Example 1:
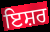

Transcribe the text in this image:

ਇਸ਼ਰ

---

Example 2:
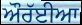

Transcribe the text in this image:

ਔਰੱਈਆ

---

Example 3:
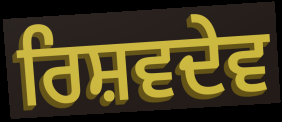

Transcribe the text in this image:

ਰਿਸ਼ਵਦੇਵ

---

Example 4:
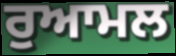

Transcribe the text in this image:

ਰੁਆਮਲ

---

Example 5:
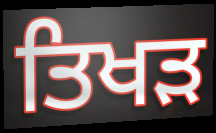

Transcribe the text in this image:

ਤਿਖੜ